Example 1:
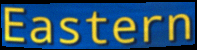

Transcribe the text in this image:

Eastern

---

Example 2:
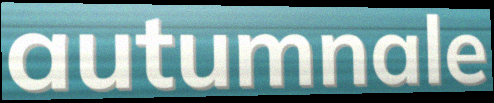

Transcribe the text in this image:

autumnale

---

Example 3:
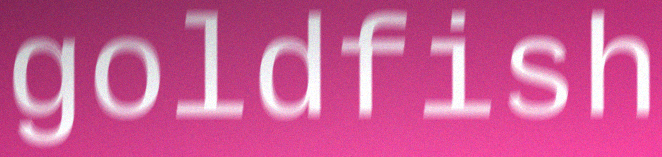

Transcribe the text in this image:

goldfish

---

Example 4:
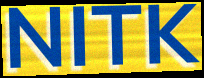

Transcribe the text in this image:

NITK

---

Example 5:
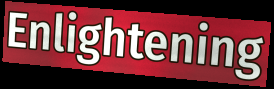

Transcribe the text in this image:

Enlightening